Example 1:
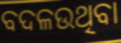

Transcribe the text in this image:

ବଦଳଉଥିବା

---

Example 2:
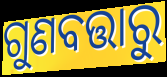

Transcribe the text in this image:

ଗୁଣବତ୍ତାରୁ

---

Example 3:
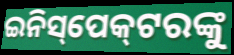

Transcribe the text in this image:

ଇନିସ୍‌ପେକ୍‌ଟରଙ୍କୁ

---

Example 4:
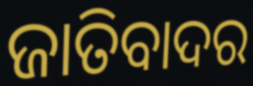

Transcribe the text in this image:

ଜାତିବାଦର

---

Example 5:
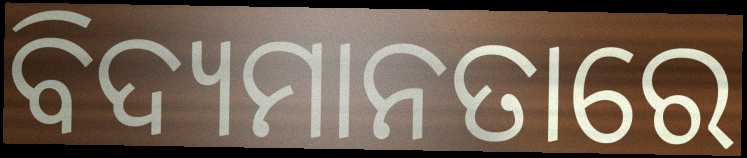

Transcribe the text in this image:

ବିଦ୍ୟମାନତାରେ